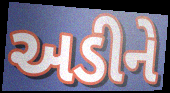
અડીને